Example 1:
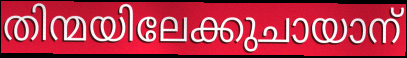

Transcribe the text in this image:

തിന്മയിലേക്കുചായാന്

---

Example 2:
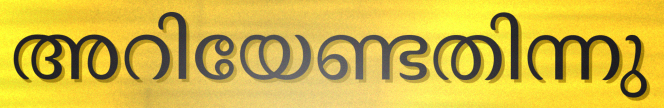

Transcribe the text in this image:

അറിയേണ്ടതിന്നു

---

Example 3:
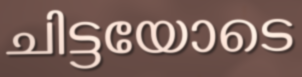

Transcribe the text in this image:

ചിട്ടയോടെ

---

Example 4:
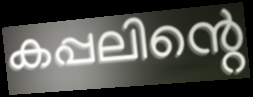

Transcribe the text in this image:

കപ്പലിന്റെ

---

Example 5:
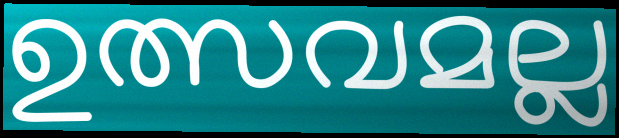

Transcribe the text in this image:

ഉത്സവമല്ല